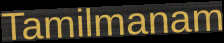
Tamilmanam